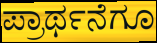
ಪ್ರಾರ್ಥನೆಗೂ